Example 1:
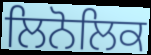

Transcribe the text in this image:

ਲਿਨੋਲਿਕ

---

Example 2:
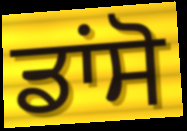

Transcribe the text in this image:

ਡਾਂਸੋ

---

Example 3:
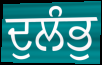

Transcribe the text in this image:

ਦੁਲੰਭੁ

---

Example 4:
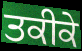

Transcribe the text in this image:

ਤਕੀਕੇ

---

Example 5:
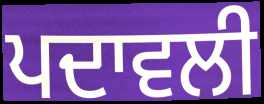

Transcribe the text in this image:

ਪਦਾਵਲੀ